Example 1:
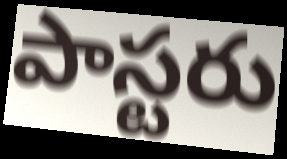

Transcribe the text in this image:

పాస్టరు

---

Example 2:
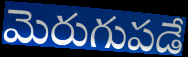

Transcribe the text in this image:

మెరుగుపడే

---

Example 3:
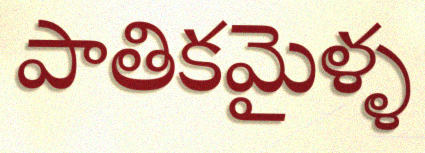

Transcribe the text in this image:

పాతికమైళ్ళ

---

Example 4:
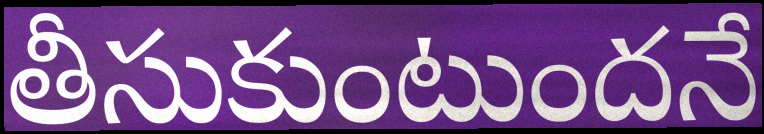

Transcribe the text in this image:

తీసుకుంటుందనే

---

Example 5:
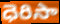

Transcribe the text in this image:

ధెరిసా